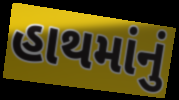
હાથમાંનું